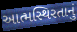
આત્મસ્થિરતાનું